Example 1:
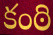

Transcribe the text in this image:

కంఠి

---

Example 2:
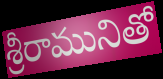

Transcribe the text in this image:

శ్రీరామునితో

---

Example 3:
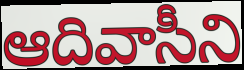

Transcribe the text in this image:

ఆదివాసీని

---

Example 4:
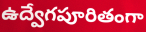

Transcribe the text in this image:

ఉద్వేగపూరితంగా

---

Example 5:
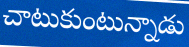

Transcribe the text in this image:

చాటుకుంటున్నాడు